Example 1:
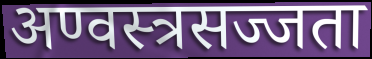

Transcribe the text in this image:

अण्वस्त्रसज्जता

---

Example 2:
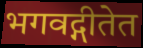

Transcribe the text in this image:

भगवद्गीतेत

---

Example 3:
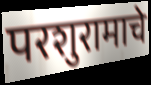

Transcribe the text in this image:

परशुरामाचे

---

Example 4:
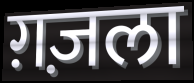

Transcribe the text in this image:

ग़ज़ला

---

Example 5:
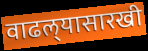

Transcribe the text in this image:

वाढल्यासारखी